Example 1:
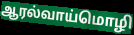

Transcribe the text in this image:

ஆரல்வாய்மொழி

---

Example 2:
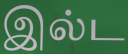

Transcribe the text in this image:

இல்ட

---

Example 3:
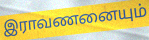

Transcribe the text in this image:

இராவணனையும்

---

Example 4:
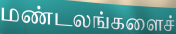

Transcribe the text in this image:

மண்டலங்களைச்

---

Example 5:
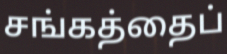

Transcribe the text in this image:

சங்கத்தைப்